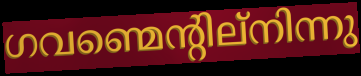
ഗവണ്മെന്റില്നിന്നു